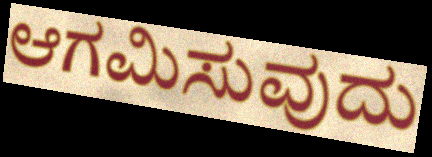
ಆಗಮಿಸುವುದು